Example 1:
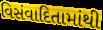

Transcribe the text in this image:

વિસંવાદિતામાંથી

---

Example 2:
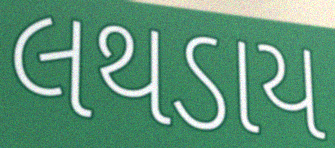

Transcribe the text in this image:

લથડાય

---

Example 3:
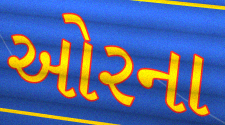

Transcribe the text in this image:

ઓરના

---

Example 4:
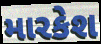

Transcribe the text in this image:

મારકેશ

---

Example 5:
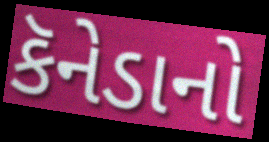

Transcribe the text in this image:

કૅનેડાનો